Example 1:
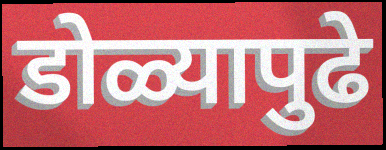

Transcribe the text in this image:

डोळ्यापुढे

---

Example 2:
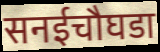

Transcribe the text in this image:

सनईचौघडा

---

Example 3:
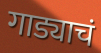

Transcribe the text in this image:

गाड्याचं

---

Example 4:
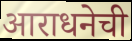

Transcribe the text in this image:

आराधनेची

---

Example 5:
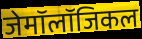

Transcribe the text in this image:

जेमॉलॉजिकल